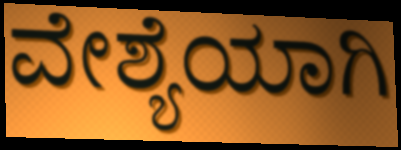
ವೇಶ್ಯೆಯಾಗಿ